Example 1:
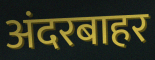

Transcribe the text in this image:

अंदरबाहर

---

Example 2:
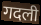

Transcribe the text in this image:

गदली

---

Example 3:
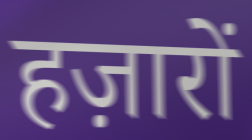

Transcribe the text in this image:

हज़ारों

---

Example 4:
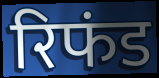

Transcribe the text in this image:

रिफंड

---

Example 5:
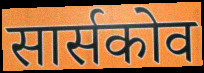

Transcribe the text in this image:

सार्सकोव